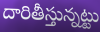
దారితీస్తున్నట్టు